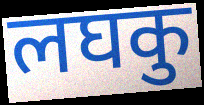
लघकु